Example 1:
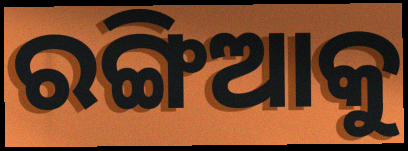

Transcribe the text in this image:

ରଙ୍ଗିଆକୁ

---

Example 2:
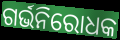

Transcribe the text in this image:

ଗର୍ଭନିରୋଧକ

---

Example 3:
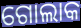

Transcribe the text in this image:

ଗୋଲାକ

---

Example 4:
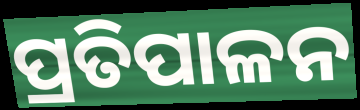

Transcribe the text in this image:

ପ୍ରତିପାଳନ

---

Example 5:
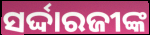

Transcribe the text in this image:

ସର୍ଦ୍ଦାରଜୀଙ୍କ